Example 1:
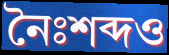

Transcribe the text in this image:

নৈঃশব্দও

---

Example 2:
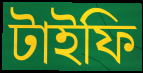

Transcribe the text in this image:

টাইফি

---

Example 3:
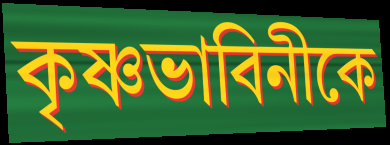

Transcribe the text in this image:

কৃষ্ণভাবিনীকে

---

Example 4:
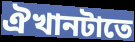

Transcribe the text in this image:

ঐখানটাতে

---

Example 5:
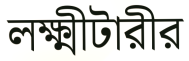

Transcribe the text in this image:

লক্ষ্মীটারীর